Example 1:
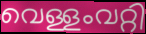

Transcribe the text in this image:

വെള്ളംവറ്റി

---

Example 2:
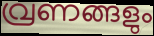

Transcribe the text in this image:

വ്രണങ്ങളും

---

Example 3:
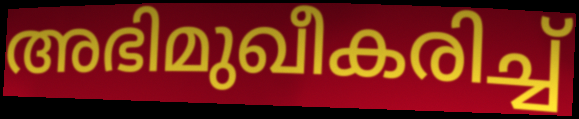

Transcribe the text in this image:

അഭിമുഖീകരിച്ച്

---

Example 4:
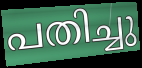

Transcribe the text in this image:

പതിച്ചു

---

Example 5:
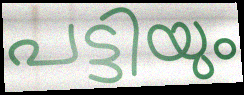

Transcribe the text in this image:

പട്ടിയും